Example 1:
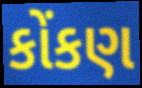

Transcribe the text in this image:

કોંકણ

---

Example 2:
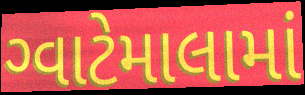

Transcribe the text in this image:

ગ્વાટેમાલામાં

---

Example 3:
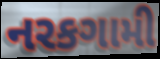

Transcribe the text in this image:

નરકગામી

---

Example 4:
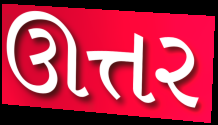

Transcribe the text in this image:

ઊત્તર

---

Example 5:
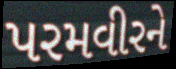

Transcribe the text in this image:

પરમવીરને